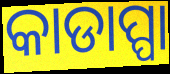
କାଡାପ୍ପା